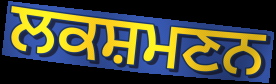
ਲਕਸ਼ਮਣਨ